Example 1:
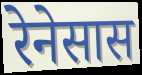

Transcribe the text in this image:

रेनेसास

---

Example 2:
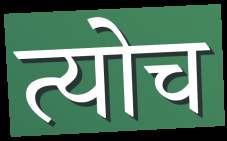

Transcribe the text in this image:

त्योच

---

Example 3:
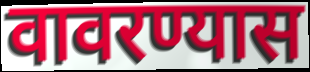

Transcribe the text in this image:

वावरण्यास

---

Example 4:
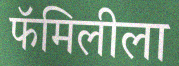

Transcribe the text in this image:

फॅमिलीला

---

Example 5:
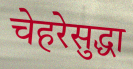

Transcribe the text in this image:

चेहरेसुद्धा